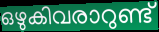
ഒഴുകിവരാറുണ്ട്